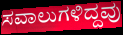
ಸವಾಲುಗಳಿದ್ದವು